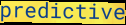
predictive